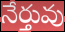
నేర్తువు